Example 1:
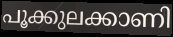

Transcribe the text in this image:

പൂക്കുലക്കാണി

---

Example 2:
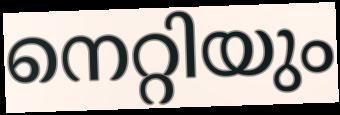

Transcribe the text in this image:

നെറ്റിയും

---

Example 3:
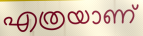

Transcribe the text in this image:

എത്രയാണ്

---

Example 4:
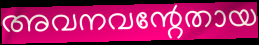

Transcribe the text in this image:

അവനവന്റേതായ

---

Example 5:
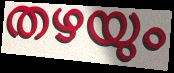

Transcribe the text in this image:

തഴയും